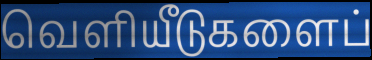
வெளியீடுகளைப்